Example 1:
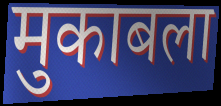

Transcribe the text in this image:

मुकाबला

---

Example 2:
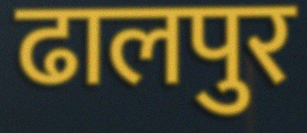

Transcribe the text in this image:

ढालपुर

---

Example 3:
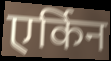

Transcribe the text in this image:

एर्किन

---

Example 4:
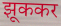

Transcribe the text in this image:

झूककर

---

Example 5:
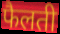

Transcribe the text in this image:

फैलती